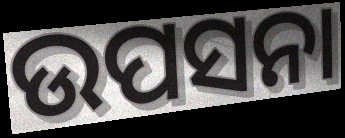
ଉପସନା